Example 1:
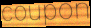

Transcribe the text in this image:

coupon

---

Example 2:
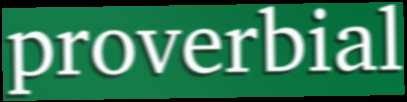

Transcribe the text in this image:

proverbial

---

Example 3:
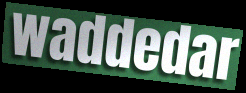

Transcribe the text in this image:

waddedar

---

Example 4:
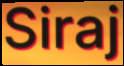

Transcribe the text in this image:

Siraj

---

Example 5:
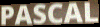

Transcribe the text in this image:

PASCAL